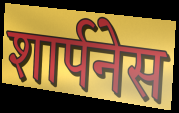
शार्पनेस